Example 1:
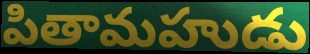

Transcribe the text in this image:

పితామహుడు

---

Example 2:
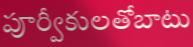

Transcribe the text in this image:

పూర్వీకులతోబాటు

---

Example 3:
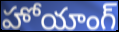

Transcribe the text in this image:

హోయాంగ్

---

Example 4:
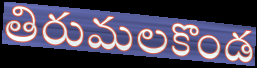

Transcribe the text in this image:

తిరుమలకొండ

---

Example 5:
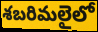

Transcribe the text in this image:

శబరిమలైలో